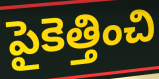
పైకెత్తించి